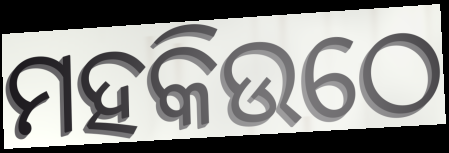
ମହକିଉଠେ